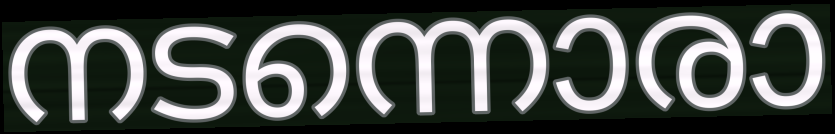
നടന്നൊരാ